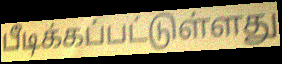
பீடிக்கப்பட்டுள்ளது